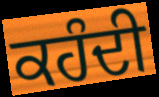
ਕਹੰਦੀ